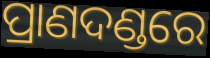
ପ୍ରାଣଦଣ୍ଡରେ